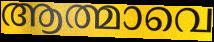
ആത്മാവെ